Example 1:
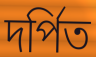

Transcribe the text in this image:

দর্পিত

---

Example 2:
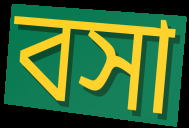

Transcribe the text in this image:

বসা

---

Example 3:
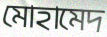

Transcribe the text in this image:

মোহামেদ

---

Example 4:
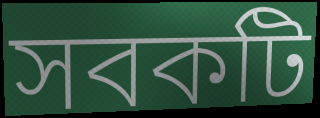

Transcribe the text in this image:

সবকটি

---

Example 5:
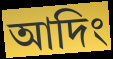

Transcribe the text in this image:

আদিং